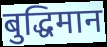
बुद्धिमान